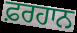
ਫ਼ਰਹਾਨ